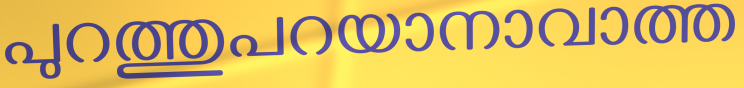
പുറത്തുപറയാനാവാത്ത